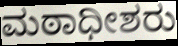
ಮಠಾಧೀಶರು